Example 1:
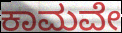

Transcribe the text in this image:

ಕಾಮವೇ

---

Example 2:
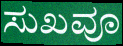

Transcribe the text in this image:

ಸುಖವೂ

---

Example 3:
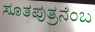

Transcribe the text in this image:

ಸೂತಪುತ್ರನೆಂಬ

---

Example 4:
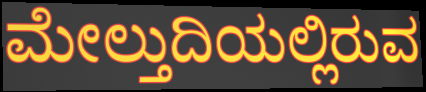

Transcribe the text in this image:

ಮೇಲ್ತುದಿಯಲ್ಲಿರುವ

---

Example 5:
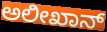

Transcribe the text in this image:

ಅಲೀಖಾನ್